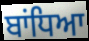
ਬਾਂਧਿਆ